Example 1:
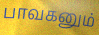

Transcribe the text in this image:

பாவகனும்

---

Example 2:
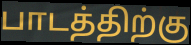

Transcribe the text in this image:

பாடத்திற்கு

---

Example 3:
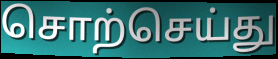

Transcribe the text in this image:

சொற்செய்து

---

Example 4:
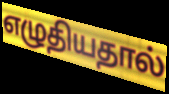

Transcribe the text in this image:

எழுதியதால்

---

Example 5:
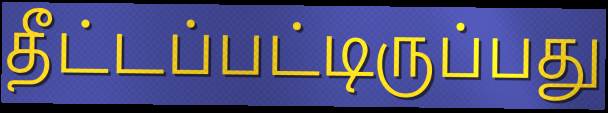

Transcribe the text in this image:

தீட்டப்பட்டிருப்பது